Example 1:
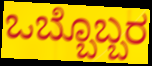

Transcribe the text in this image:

ಒಬ್ಬೊಬ್ಬರ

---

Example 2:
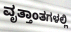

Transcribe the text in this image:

ವೃತ್ತಾಂತಗಳಲ್ಲಿ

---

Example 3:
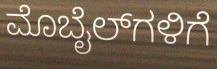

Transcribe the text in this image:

ಮೊಬೈಲ್‌ಗಳಿಗೆ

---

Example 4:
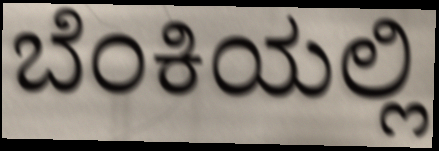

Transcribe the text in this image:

ಬೆಂಕಿಯಲ್ಲಿ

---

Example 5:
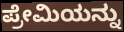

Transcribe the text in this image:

ಪ್ರೇಮಿಯನ್ನು